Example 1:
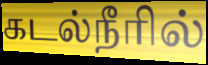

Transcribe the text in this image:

கடல்நீரில்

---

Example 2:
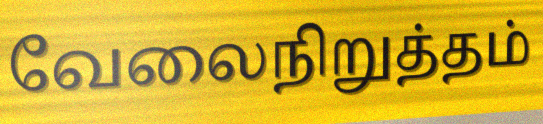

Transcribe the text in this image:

வேலைநிறுத்தம்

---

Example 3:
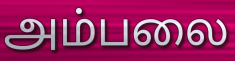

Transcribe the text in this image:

அம்பலை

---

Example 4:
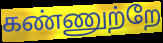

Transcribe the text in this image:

கண்ணுற்றே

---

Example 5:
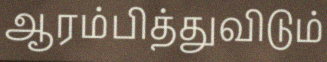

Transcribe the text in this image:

ஆரம்பித்துவிடும்